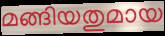
മങ്ങിയതുമായ